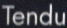
Tendu